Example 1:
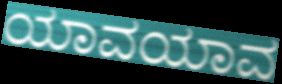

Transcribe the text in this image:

ಯಾವಯಾವ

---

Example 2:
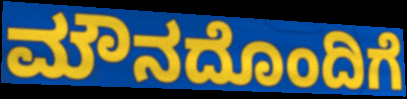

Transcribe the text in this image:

ಮೌನದೊಂದಿಗೆ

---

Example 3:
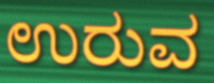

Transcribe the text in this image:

ಉರುವ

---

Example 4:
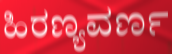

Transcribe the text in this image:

ಹಿರಣ್ಯವರ್ಣ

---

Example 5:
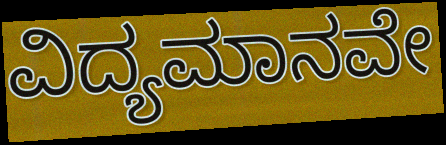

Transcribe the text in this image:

ವಿದ್ಯಮಾನವೇ